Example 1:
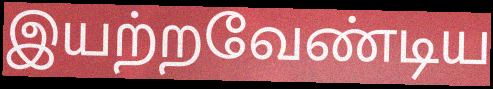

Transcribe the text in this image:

இயற்றவேண்டிய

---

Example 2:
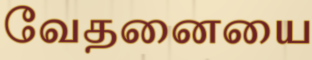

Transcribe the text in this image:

வேதனையை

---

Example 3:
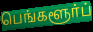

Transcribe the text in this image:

பெங்களூர்ப்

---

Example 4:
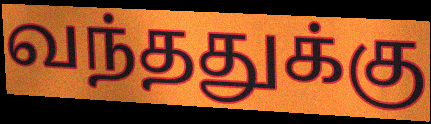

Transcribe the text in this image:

வந்ததுக்கு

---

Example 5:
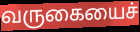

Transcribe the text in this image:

வருகையைச்